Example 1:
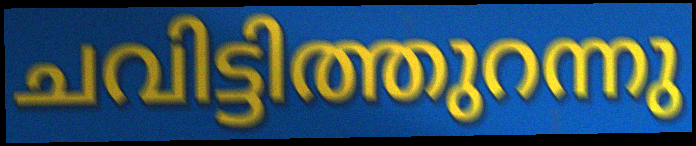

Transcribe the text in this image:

ചവിട്ടിത്തുറന്നു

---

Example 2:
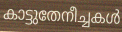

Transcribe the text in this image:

കാട്ടുതേനീച്ചകൾ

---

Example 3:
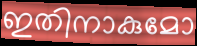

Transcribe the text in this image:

ഇതിനാകുമോ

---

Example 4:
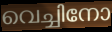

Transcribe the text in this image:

വെച്ചിനോ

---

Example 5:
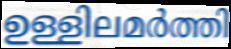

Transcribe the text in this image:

ഉള്ളിലമർത്തി